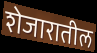
शेजारातील